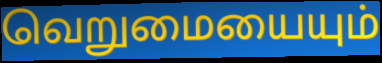
வெறுமையையும்